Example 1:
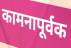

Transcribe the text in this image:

कामनापूर्वक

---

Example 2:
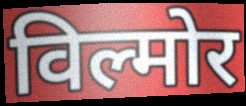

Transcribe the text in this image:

विल्मोर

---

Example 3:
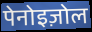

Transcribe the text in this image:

पेनोइज़ोल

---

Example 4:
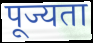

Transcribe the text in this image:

पूज्यता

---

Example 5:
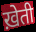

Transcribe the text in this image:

ख़ेती